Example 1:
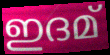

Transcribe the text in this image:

ഇദമ്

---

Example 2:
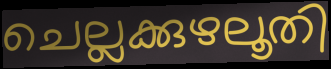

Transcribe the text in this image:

ചെല്ലക്കുഴലൂതി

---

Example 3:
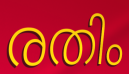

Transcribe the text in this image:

രതിം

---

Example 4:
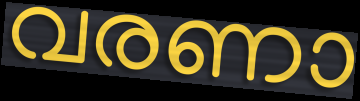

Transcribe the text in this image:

വരണാ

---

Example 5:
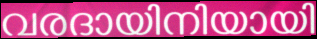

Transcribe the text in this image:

വരദായിനിയായി